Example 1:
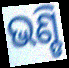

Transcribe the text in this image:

ଭଣ୍ଡି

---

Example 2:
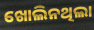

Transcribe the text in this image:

ଖୋଲିନଥିଲା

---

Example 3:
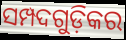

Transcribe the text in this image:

ସମ୍ପଦଗୁଡ଼ିକର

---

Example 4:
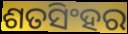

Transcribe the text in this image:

ଶତସିଂହର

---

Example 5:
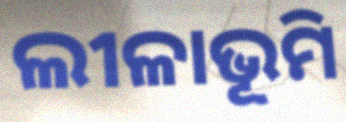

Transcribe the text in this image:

ଲୀଳାଭୂମି